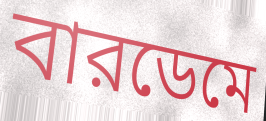
বারডেমে